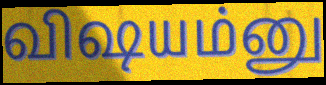
விஷயம்னு